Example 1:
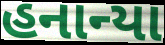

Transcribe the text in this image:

હનાન્યા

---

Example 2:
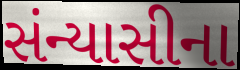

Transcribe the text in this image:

સંન્યાસીના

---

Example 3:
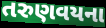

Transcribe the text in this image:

તરુણવયના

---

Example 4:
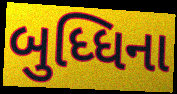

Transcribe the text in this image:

બુધ્ધિના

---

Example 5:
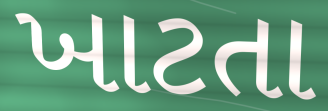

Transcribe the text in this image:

ખાટતા